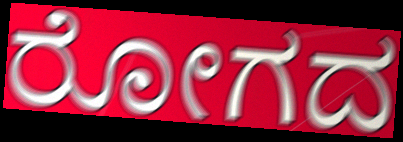
ರೋಗದ